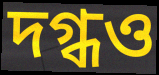
দগ্ধও